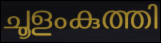
ചൂളംകുത്തി